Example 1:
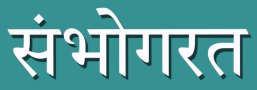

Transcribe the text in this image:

संभोगरत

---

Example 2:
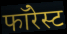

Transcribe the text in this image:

फॉरेस्ट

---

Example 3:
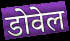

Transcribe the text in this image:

डोवेल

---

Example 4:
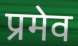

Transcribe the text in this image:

प्रमेव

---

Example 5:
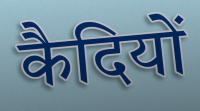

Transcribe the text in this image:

कैदियों